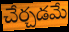
చేర్చడమే